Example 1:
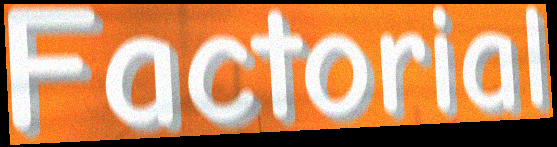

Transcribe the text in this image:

Factorial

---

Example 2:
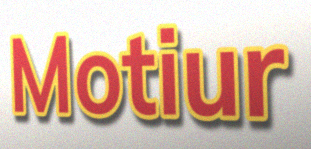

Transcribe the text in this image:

Motiur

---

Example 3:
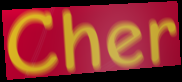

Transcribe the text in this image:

Cher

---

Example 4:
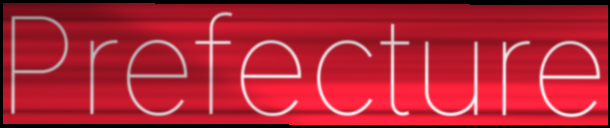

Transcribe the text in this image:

Prefecture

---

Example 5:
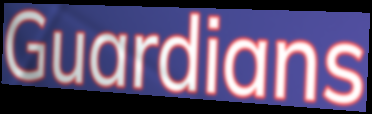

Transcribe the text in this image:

Guardians